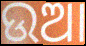
ଉଆ